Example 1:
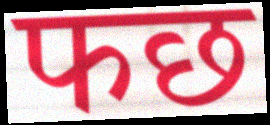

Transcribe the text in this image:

फछ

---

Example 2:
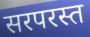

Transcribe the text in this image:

सरपरस्त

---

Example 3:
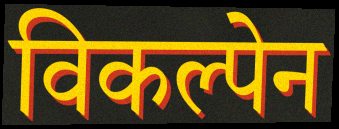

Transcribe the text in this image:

विकल्पेन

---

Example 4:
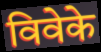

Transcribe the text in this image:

विवेके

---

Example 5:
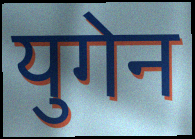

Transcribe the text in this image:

युगेन